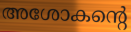
അശോകന്റെ